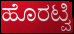
ಹೊರಟ್ವಿ